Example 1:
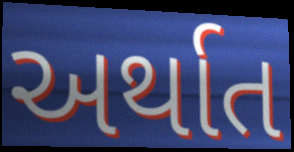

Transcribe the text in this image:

અર્થાત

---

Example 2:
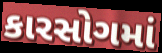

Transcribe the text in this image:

કારસોગમાં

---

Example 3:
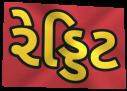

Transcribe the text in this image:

રેડ્ડિટ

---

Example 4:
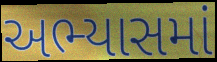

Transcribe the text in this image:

અભ્યાસમાં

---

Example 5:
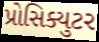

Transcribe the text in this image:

પ્રોસિક્યુટર